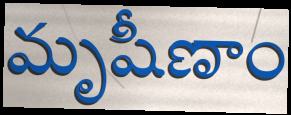
మృషీణాం